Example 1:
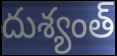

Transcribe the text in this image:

దుశ్యంత్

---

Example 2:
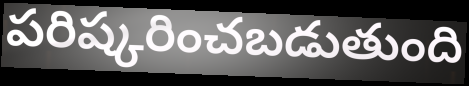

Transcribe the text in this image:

పరిష్కరించబడుతుంది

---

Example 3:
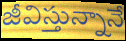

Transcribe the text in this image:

జీవిస్తున్నానే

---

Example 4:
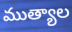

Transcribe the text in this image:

ముత్యాల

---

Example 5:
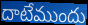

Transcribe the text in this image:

దాటేముందు